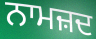
ਨਾਮਜ਼ਦ